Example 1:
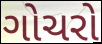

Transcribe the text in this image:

ગોચરો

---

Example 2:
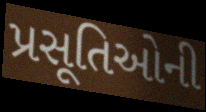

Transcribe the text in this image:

પ્રસૂતિઓની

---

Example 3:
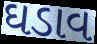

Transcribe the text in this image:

ઘડાવ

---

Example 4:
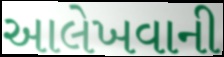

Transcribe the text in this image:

આલેખવાની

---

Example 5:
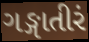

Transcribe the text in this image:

ગઙ્ગાતીરં